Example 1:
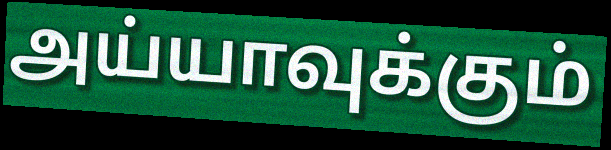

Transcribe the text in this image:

அய்யாவுக்கும்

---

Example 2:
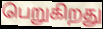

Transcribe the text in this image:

பெறுகிறது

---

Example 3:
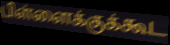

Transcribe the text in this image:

பிள்ளைக்குக்கூட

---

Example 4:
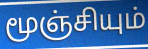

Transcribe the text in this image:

மூஞ்சியும்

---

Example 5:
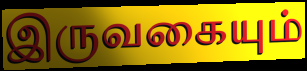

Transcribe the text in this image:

இருவகையும்